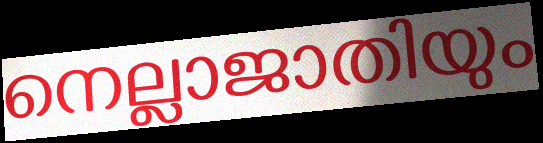
നെല്ലാജാതിയും